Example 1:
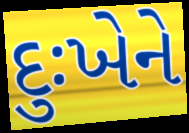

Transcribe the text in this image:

દુઃખેને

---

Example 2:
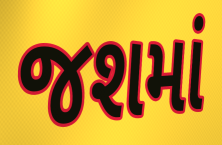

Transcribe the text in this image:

જશમાં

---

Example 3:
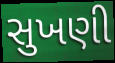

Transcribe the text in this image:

સુખણી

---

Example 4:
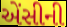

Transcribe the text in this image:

એંસીની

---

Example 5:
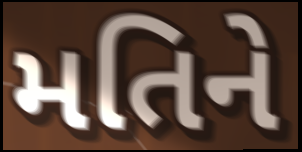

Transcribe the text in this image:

મતિને